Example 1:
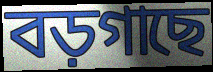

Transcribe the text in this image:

বড়গাছে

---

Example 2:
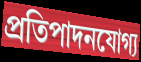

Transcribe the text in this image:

প্রতিপাদনযোগ্য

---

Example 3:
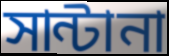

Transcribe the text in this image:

সান্টানা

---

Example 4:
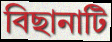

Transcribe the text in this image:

বিছানাটি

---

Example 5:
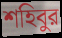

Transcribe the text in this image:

শহিবুর